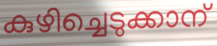
കുഴിച്ചെടുക്കാന്